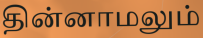
தின்னாமலும்